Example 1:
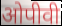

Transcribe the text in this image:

ओपीवी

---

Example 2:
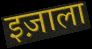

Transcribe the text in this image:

इज़ाला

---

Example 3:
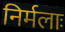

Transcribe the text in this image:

निर्मलाः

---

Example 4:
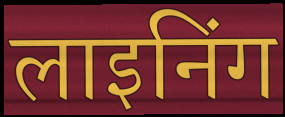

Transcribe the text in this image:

लाइनिंग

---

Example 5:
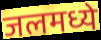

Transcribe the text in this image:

जलमध्ये